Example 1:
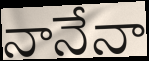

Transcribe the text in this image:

నానేనా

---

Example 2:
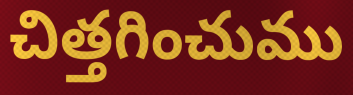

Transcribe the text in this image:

చిత్తగించుము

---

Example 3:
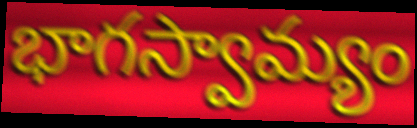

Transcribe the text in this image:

భాగస్వామ్యం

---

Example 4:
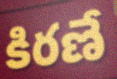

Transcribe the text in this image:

కిరణే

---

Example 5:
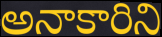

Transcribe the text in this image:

అనాకారిని